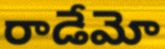
రాడేమో